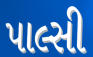
પાલ્સી